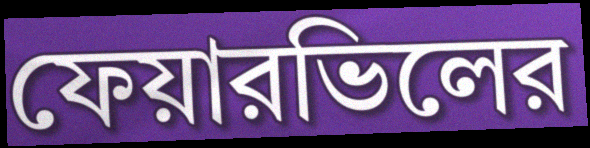
ফেয়ারভিলের